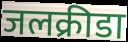
जलक्रीडा